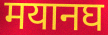
मयानघ